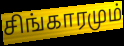
சிங்காரமும்